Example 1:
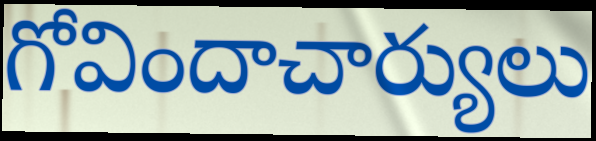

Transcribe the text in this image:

గోవిందాచార్యులు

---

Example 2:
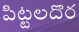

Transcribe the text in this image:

పిట్టలదొర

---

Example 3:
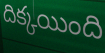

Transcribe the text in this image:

దిక్కయింది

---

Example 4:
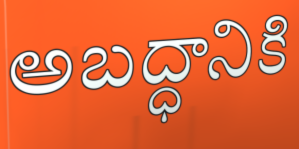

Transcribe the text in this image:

అబద్ధానికి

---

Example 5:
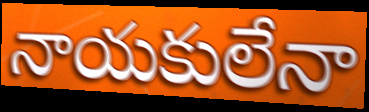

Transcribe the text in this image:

నాయకులేనా